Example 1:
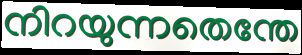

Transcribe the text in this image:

നിറയുന്നതെന്തേ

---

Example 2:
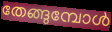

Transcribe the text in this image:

തേങ്ങുമ്പോൾ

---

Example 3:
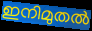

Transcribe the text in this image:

ഇനിമുതൽ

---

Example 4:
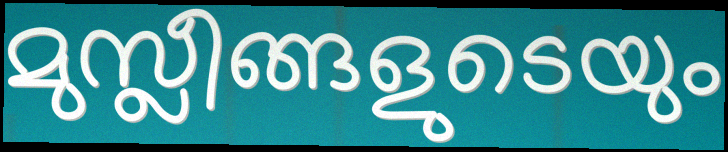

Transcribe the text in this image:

മുസ്ലീങ്ങളുടെയും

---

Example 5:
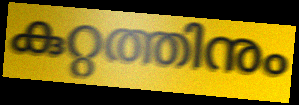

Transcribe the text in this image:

കുറ്റത്തിനും